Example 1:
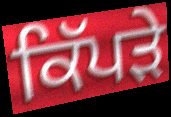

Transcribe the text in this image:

ਕਿੱਪੜੇ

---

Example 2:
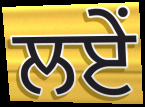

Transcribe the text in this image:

ਲਏਂ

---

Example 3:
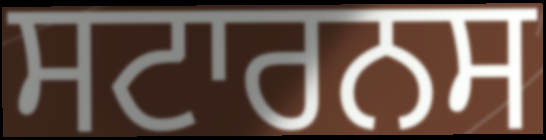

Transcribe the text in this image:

ਸਟਾਰਨਸ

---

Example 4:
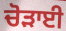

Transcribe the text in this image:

ਚੋੜਾਈ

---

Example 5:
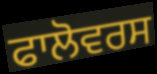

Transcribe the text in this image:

ਫਾਲੋਵਰਸ